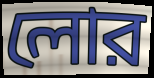
লোর